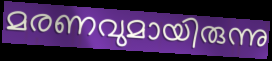
മരണവുമായിരുന്നു